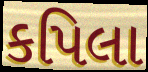
કપિલા